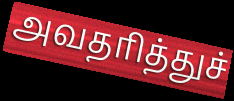
அவதரித்துச்